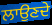
ਲਾਉਣਦੇ